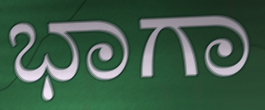
ಭಾಗಾ